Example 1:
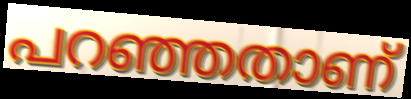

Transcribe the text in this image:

പറഞ്ഞതാണ്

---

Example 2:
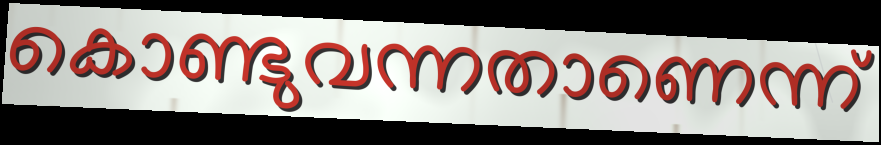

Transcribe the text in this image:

കൊണ്ടുവന്നതാണെന്ന്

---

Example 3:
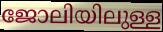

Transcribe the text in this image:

ജോലിയിലുള്ള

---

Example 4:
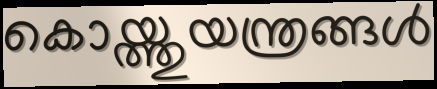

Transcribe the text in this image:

കൊയ്ത്തുയന്ത്രങ്ങൾ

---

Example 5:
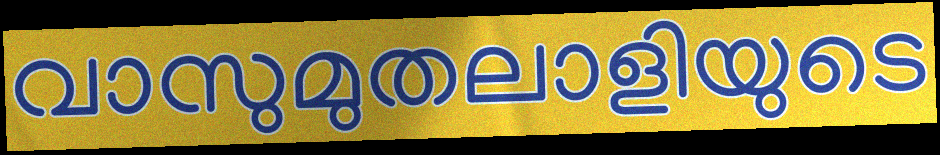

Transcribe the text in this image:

വാസുമുതലാളിയുടെ